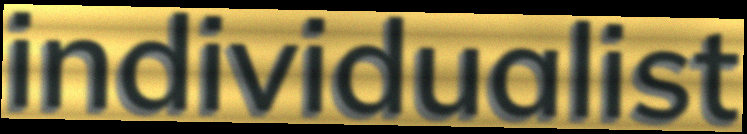
individualist